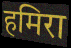
हमिरा